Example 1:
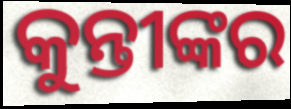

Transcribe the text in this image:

କୁନ୍ତୀଙ୍କର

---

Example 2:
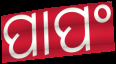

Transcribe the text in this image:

ପାପଂ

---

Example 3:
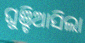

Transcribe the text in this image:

ଘୁଞ୍ଚିଆସିଲା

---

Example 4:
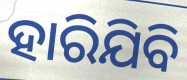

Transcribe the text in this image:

ହାରିଯିବି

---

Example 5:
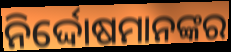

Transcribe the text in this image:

ନିର୍ଦ୍ଦୋଷମାନଙ୍କର